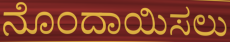
ನೊಂದಾಯಿಸಲು